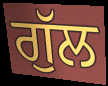
ਗੁੱਲ